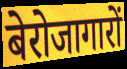
बेरोजागारों